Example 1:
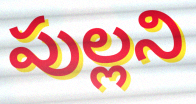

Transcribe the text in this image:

పుల్లని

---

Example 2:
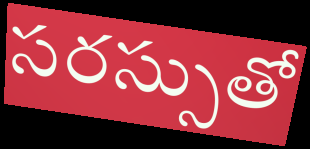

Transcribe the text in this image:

సరస్సుతో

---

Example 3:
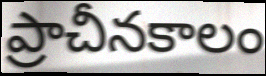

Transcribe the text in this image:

ప్రాచీనకాలం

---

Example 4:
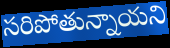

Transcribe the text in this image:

సరిపోతున్నాయని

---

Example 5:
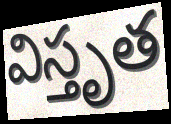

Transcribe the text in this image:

విస్తృత